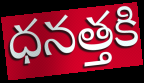
ధనత్తకి